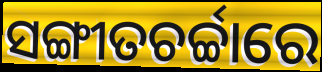
ସଙ୍ଗୀତଚର୍ଚ୍ଚାରେ